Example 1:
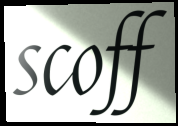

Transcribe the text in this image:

scoff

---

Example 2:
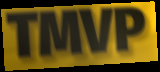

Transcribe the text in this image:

TMVP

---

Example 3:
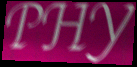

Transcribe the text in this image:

PHY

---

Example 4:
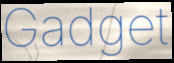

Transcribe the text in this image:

Gadget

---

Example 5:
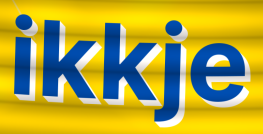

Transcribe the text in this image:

ikkje